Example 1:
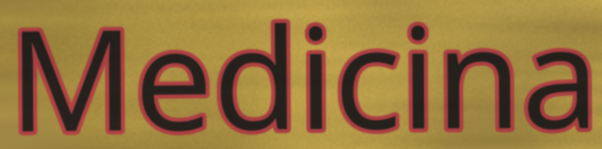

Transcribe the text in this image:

Medicina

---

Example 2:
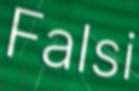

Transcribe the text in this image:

Falsi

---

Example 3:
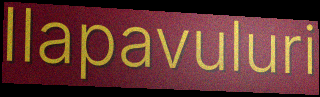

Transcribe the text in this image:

Ilapavuluri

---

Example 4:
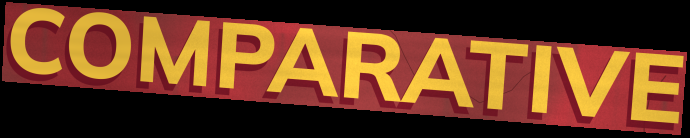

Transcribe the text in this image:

COMPARATIVE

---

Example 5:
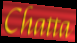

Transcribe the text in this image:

Chatta